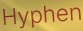
Hyphen